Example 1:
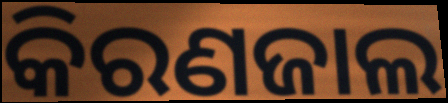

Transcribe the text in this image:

କିରଣଜାଲ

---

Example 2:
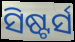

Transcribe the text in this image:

ସିଷ୍ଟର୍ସ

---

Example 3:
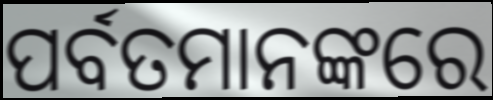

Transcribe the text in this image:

ପର୍ବତମାନଙ୍କରେ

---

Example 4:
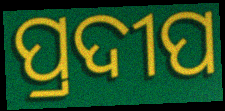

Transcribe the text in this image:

ପ୍ରଦୀପ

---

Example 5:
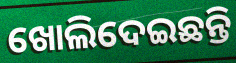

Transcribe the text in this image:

ଖୋଲିଦେଇଛନ୍ତି